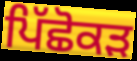
ਪਿੱਛੋਕੜ